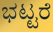
ಭಟ್ಟರೆ